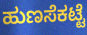
ಹುಣಸೆಕಟ್ಟೆ